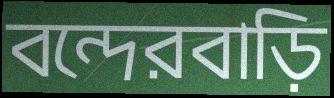
বন্দেরবাড়ি